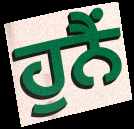
ਹੁਨੈਂ